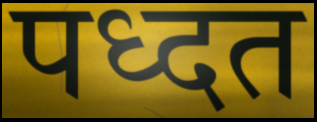
पध्दत